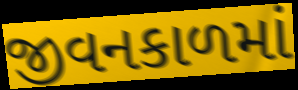
જીવનકાળમાં